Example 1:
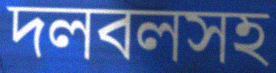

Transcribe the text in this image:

দলবলসহ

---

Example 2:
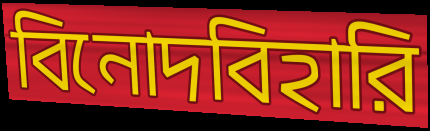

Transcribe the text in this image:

বিনোদবিহারি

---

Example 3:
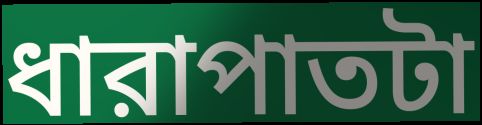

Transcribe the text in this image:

ধারাপাতটা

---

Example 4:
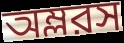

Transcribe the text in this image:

অম্লরস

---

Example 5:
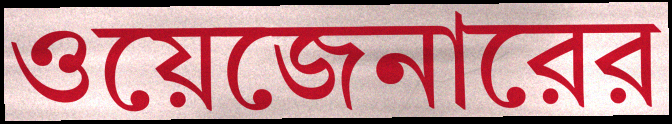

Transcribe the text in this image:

ওয়েজেনারের